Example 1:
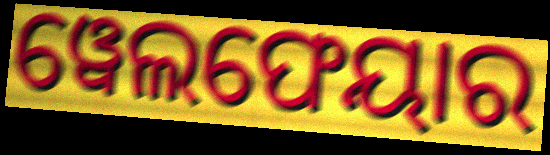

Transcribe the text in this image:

ୱେଲଫେୟାର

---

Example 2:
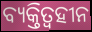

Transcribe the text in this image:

ବ୍ୟକ୍ତିତ୍ୱହୀନ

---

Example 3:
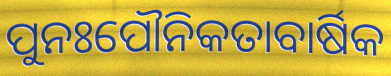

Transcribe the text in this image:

ପୁନଃପୌନିକତାବାର୍ଷିକ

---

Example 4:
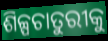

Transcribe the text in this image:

ଶିଳ୍ପଚାତୁରୀକୁ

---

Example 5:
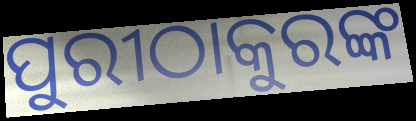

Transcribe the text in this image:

ପୁରୀଠାକୁରଙ୍କ